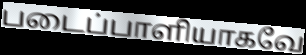
படைப்பாளியாகவே